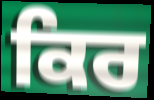
ਕਿਰ